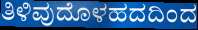
ತಿಳಿವುದೊಳಹದದಿಂದ